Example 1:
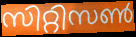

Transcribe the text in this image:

സിറ്റിസൺ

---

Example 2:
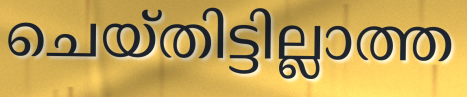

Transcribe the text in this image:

ചെയ്തിട്ടില്ലാത്ത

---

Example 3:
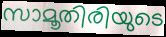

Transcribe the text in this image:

സാമൂതിരിയുടെ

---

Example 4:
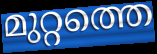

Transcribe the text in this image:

മുറ്റത്തെ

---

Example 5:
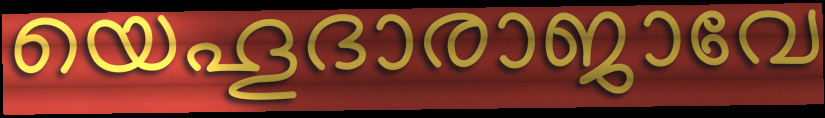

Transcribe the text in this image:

യെഹൂദാരാജാവേ